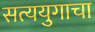
सत्ययुगाचा